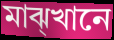
মাঝ্খানে